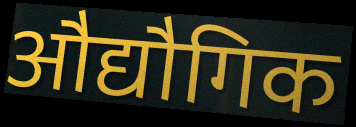
औद्यौगिक